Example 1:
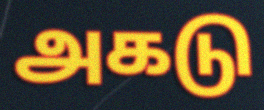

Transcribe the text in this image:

அகடு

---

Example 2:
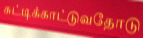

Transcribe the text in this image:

சுட்டிக்காட்டுவதோடு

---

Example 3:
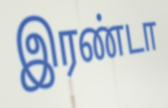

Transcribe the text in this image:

இரண்டா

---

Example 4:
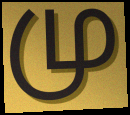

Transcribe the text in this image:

மு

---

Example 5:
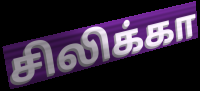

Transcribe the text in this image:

சிலிக்கா